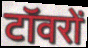
टॉवरों